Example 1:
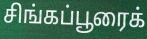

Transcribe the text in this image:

சிங்கப்பூரைக்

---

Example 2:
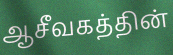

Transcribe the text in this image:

ஆசீவகத்தின்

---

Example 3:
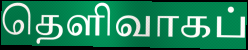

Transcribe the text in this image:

தெளிவாகப்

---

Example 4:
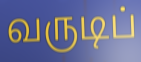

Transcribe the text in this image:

வருடிப்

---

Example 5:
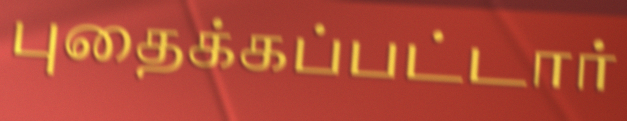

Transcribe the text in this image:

புதைக்கப்பட்டார்